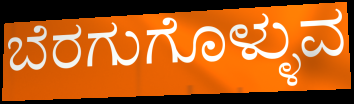
ಬೆರಗುಗೊಳ್ಳುವ